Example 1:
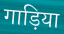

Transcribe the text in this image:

गाड़िया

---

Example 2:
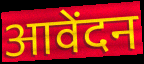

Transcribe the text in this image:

आवेंदन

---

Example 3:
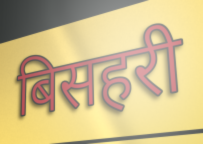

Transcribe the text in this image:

बिसहरी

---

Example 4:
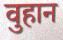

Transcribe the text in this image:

वुहान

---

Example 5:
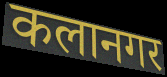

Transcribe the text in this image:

कलानगर